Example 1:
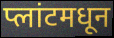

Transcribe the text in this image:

प्लांटमधून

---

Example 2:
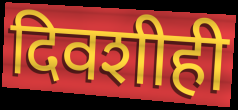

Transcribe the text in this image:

दिवशीही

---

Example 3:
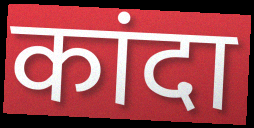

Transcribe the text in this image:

कांदा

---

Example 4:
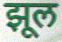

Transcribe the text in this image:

झूल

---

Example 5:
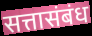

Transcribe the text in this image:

सत्तासंबंध